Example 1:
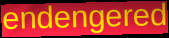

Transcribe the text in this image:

endengered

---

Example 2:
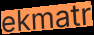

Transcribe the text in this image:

ekmatr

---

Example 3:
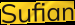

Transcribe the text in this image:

Sufian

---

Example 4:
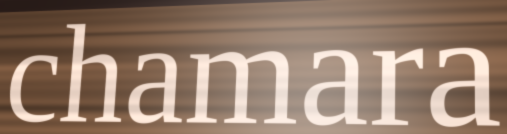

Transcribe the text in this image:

chamara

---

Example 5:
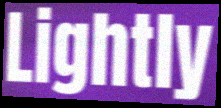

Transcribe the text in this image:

Lightly